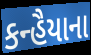
કન્હૈયાના